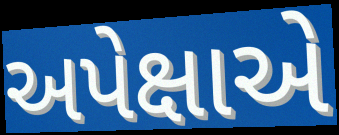
અપેક્ષાએ